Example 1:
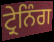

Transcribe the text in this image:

ਟ੍ਰੇਨਿੰਗ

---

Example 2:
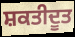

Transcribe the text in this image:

ਸ਼ਕਤੀਦੂਤ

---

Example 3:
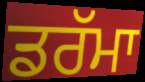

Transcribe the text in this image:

ਡਰੱਮਾ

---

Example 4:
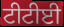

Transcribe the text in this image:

ਟੀਟੀਈ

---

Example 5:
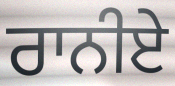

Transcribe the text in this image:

ਰਾਨੀਏ